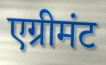
एग्रीमंट